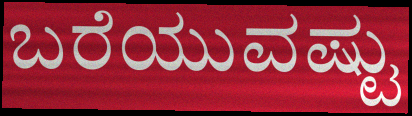
ಬರೆಯುವಷ್ಟು